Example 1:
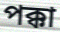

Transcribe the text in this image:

পক্কা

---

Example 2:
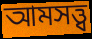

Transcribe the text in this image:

আমসত্ত্ব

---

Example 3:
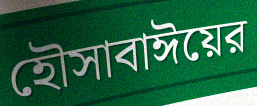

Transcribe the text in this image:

হৌসাবাঈয়ের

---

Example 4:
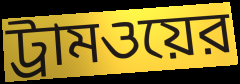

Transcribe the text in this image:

ট্রামওয়ের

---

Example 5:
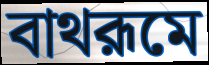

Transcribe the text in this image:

বাথরূমে